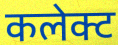
कलेक्ट